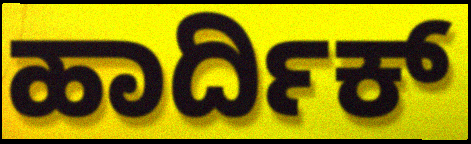
ಹಾರ್ದಿಕ್